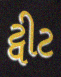
ટ્વીટ